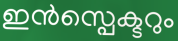
ഇൻസ്പെക്ടറും